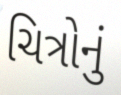
ચિત્રોનું